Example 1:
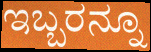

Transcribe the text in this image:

ಇಬ್ಬರನ್ನೂ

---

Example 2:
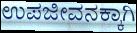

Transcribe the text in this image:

ಉಪಜೀವನಕ್ಕಾಗಿ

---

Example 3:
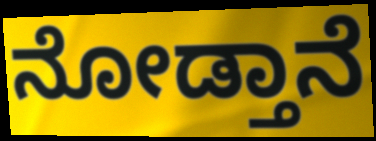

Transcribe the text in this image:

ನೋಡ್ತಾನೆ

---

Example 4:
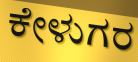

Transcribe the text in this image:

ಕೇಳುಗರ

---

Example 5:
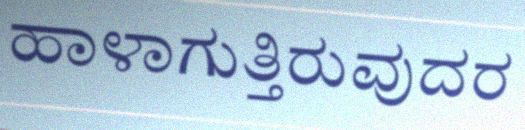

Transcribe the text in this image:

ಹಾಳಾಗುತ್ತಿರುವುದರ